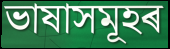
ভাষাসমূহৰ